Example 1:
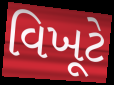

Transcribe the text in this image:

વિખૂટે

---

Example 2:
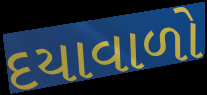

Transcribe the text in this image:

દયાવાળો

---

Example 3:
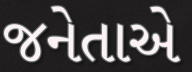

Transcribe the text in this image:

જનેતાએ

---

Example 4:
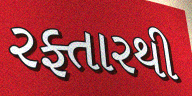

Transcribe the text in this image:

રફ્તારથી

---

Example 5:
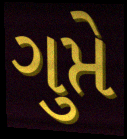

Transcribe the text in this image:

ગુપ્તે